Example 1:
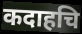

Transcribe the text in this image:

कदाहचि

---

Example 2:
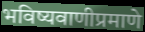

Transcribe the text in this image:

भविष्यवाणीप्रमाणे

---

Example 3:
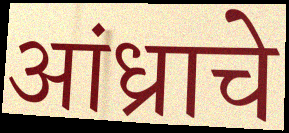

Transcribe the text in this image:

आंध्राचे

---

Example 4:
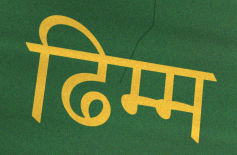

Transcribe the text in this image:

ढिम्म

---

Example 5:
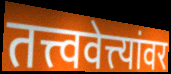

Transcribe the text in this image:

तत्त्ववेत्त्यांवर